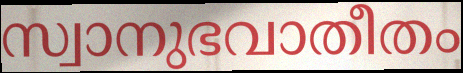
സ്വാനുഭവാതീതം